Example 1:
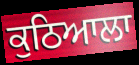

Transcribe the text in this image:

ਕੁਠਿਆਲਾ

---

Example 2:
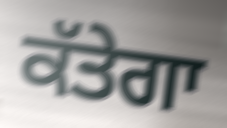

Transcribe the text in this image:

ਕੱਤੇਗਾ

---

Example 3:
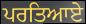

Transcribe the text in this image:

ਪਰਤਿਆਏ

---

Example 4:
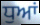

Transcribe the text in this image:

ਧੁਆਂ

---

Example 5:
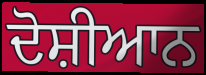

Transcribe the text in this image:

ਦੋਸ਼ੀਆਨ